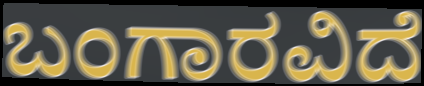
ಬಂಗಾರವಿದೆ